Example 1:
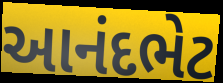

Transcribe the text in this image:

આનંદભેટ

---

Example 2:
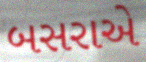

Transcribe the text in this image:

બસરાએ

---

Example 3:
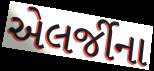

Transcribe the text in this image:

એલર્જીના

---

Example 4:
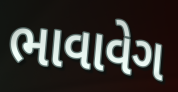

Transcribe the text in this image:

ભાવાવેગ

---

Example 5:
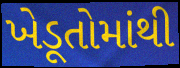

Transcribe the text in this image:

ખેડૂતોમાંથી